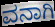
ವನಾಗಿ